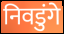
निवडुंगे